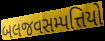
બલજવસમ્પત્તિયો